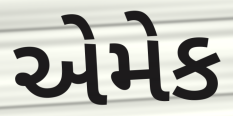
એમેક